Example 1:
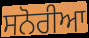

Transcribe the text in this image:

ਸਨੋਰੀਆ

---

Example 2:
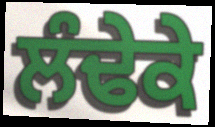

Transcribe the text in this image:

ਲੰਢੇਕੇ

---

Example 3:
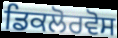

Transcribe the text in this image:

ਡਿਕਲੋਰਵੋਸ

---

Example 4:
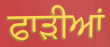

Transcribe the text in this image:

ਫਾੜੀਆਂ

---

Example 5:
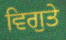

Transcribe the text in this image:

ਵਿਗੁਤੇ